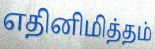
எதினிமித்தம்